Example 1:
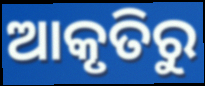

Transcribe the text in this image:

ଆକୃତିରୁ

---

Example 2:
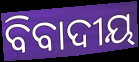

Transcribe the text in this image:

ବିବାଦୀୟ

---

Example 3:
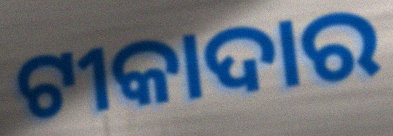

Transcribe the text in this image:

ଟୀକାଦାର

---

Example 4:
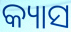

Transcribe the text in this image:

କ୍ୟାସ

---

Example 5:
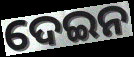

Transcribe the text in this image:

ଦେଇନ